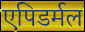
एपिडर्मल